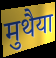
मुथैया